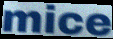
mice